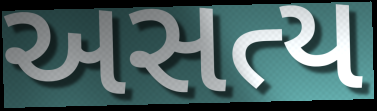
અસત્ય